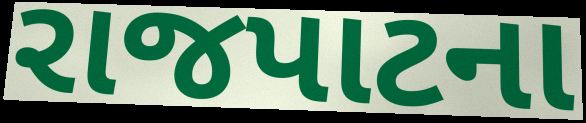
રાજપાટના